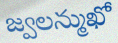
జ్వలన్ముఖో